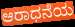
ಆರಾಧನೆಯ